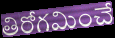
తిరోగమించే